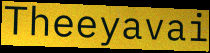
Theeyavai